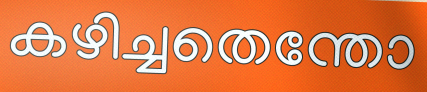
കഴിച്ചതെന്തോ